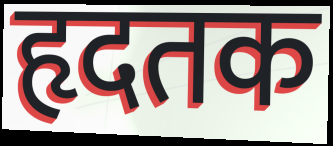
हृदतक